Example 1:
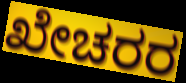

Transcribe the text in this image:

ಖೇಚರರ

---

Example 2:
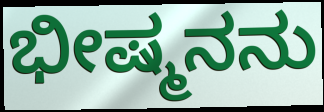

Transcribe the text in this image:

ಭೀಷ್ಮನನು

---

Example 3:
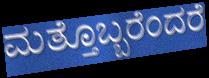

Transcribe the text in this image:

ಮತ್ತೊಬ್ಬರೆಂದರೆ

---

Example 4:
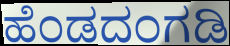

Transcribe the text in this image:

ಹೆಂಡದಂಗಡಿ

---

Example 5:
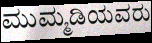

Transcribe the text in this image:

ಮುಮ್ಮಡಿಯವರು